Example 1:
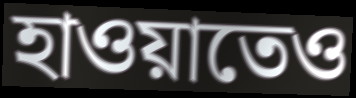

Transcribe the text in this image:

হাওয়াতেও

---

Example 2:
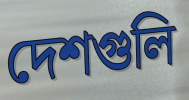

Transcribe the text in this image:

দেশগুলি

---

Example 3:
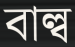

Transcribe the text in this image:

বাল্ব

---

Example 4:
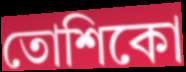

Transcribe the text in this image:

তোশিকো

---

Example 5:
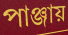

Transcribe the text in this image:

পাঞ্জায়